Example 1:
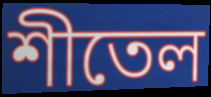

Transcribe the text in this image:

শীতেল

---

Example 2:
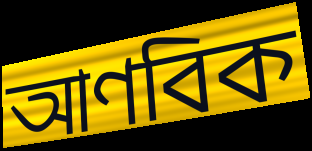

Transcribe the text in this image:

আণবিক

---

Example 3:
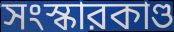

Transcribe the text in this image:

সংস্কারকাণ্ড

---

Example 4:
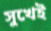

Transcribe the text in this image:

সুখেই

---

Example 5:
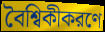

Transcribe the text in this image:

বৈশ্বিকীকরণে